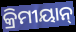
କ୍ରିମୀୟାନ୍